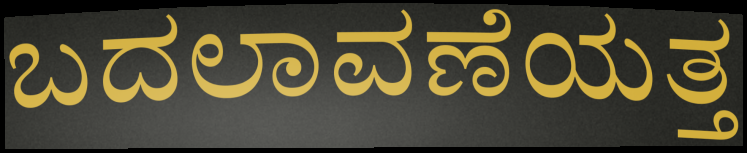
ಬದಲಾವಣೆಯತ್ತ